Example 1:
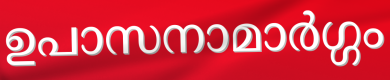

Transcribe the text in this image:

ഉപാസനാമാർഗ്ഗം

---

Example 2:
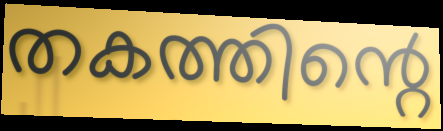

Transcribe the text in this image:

തകത്തിന്റെ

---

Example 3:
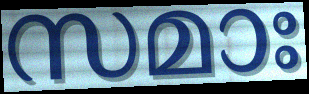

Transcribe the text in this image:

സമാഃ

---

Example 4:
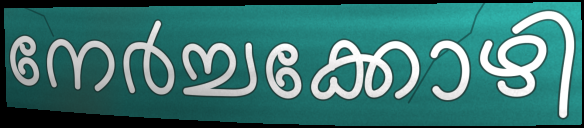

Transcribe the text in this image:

നേർച്ചക്കോഴി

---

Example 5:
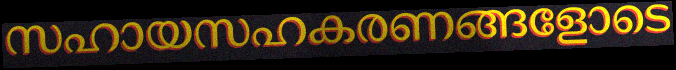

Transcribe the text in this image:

സഹായസഹകരണങ്ങളോടെ